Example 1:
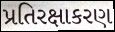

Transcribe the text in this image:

પ્રતિરક્ષાકરણ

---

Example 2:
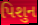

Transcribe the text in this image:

પિશુન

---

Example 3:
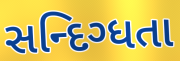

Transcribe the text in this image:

સન્દિગ્ધતા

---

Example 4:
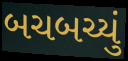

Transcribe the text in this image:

બચબચ્યું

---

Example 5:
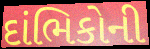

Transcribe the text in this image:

દાંભિકોની